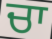
ਚਾ